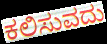
ಕಲಿಸುವದು